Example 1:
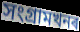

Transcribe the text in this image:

সংগ্ৰামখনৰ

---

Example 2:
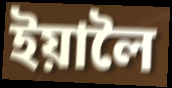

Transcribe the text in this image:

ইয়ালৈ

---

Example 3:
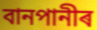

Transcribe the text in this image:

বানপানীৰ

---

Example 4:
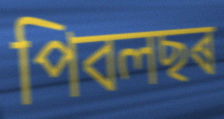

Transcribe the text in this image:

পিবলছৰ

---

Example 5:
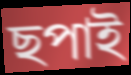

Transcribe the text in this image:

ছপাই